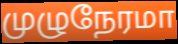
முழுநேரமா